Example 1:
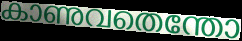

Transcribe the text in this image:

കാണുവതെന്തോ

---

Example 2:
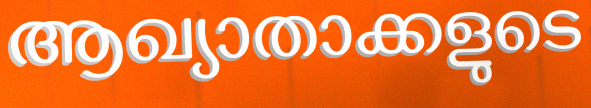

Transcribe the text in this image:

ആഖ്യാതാക്കളുടെ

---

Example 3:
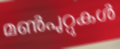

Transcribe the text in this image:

മൺപുറ്റുകൾ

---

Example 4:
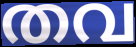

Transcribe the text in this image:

തവ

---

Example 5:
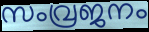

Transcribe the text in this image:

സംവ്രജനം